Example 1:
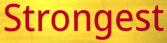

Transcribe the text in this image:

Strongest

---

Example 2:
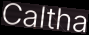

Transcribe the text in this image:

Caltha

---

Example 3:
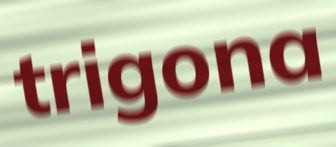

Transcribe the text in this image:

trigona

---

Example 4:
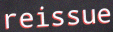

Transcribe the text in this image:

reissue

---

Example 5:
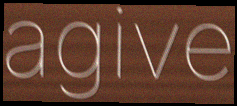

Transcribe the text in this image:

agive